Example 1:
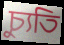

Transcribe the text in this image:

চ্যুতি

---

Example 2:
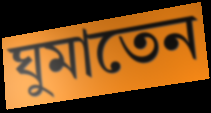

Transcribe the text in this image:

ঘুমাতেন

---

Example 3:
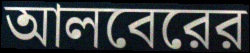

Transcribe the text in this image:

আলবেরের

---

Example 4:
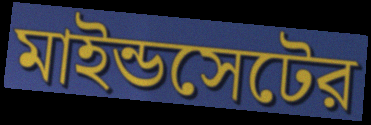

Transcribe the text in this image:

মাইন্ডসেটের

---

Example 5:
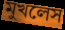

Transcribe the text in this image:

মুখলেস